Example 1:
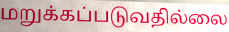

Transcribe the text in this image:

மறுக்கப்படுவதில்லை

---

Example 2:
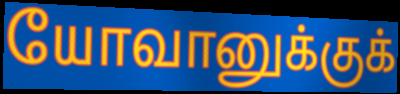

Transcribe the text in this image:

யோவானுக்குக்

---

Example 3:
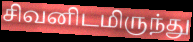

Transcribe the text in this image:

சிவனிடமிருந்து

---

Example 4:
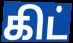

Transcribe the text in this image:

கிட்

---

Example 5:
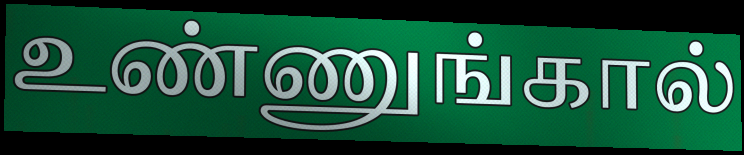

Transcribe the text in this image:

உண்ணுங்கால்